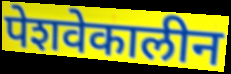
पेशवेकालीन